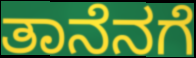
ತಾನೆನಗೆ